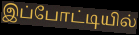
இப்போட்டியில்